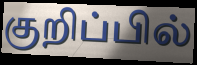
குறிப்பில்